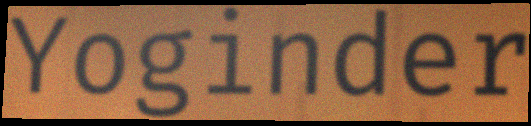
Yoginder